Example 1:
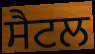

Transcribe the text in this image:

ਸੈਟਲ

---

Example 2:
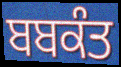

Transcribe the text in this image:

ਬਬਕੰਤ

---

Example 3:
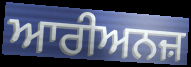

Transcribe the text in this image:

ਆਰੀਅਨਜ਼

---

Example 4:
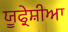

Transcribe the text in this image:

ਯੂਫ੍ਰੇਸ਼ੀਆ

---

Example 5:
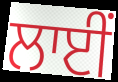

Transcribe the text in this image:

ਲਾਈਂ